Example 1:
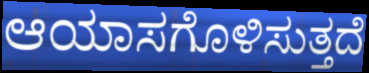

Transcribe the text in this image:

ಆಯಾಸಗೊಳಿಸುತ್ತದೆ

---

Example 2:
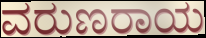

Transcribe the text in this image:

ವರುಣರಾಯ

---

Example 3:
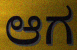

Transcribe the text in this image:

ಆಗ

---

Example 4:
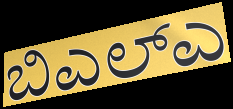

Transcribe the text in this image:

ಬಿಎಲ್ಎ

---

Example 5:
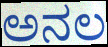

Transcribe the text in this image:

ಅನಲ